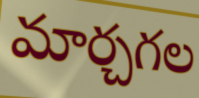
మార్చగల